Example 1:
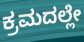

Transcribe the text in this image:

ಕ್ರಮದಲ್ಲೇ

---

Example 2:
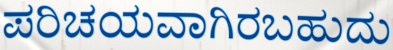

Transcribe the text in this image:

ಪರಿಚಯವಾಗಿರಬಹುದು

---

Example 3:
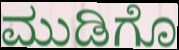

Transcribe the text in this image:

ಮುಡಿಗೊ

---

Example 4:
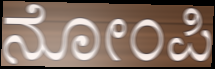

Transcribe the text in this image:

ನೋಂಪಿ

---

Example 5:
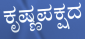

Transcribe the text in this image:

ಕೃಷ್ಣಪಕ್ಷದ